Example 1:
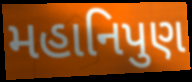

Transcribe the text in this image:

મહાનિપુણ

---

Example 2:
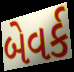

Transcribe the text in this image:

બેવર્ક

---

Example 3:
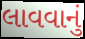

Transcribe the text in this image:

લાવવાનું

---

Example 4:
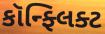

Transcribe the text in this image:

કૉન્ફ્લિક્ટ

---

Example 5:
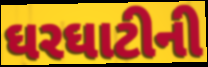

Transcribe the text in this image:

ઘરઘાટીની